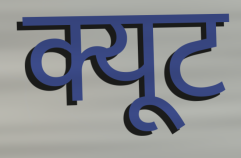
क्यूट